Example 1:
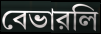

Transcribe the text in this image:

বেভারলি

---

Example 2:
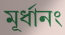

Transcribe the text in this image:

মূর্ধানং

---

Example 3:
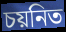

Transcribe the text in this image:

চয়নিত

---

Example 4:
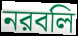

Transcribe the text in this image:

নরবলি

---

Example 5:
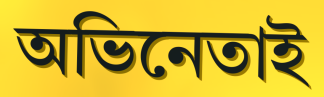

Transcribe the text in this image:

অভিনেতাই